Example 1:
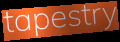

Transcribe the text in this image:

tapestry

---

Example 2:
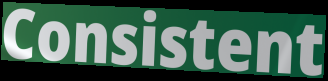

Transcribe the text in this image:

Consistent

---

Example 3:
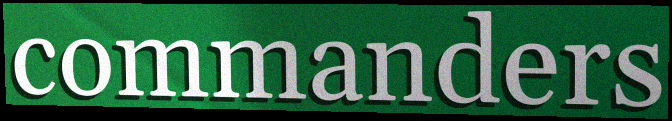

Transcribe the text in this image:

commanders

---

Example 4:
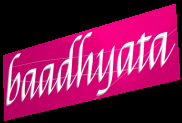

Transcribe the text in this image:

baadhyata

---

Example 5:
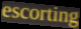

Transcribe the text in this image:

escorting